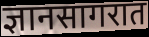
ज्ञानसागरात